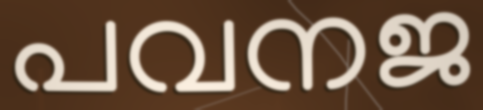
പവനജ